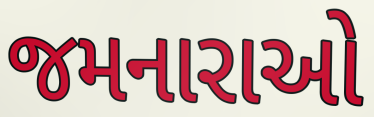
જમનારાઓ